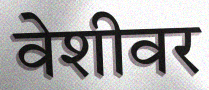
वेशीवर